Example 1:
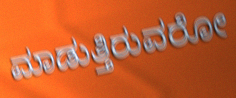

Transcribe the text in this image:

ಮಾಡುತ್ತಿರುವರೋ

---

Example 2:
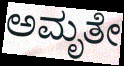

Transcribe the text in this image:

ಅಮೃತೇ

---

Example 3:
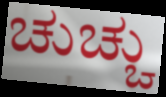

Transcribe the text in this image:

ಚುಚ್ಚು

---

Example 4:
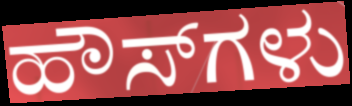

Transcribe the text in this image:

ಹೌಸ್‌ಗಳು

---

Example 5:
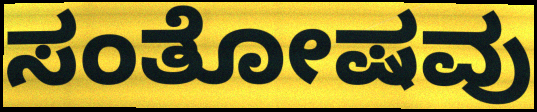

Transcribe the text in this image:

ಸಂತೋಷವು